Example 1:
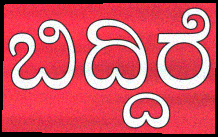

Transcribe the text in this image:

ಬಿದ್ದಿರೆ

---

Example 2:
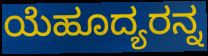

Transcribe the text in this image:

ಯೆಹೂದ್ಯರನ್ನ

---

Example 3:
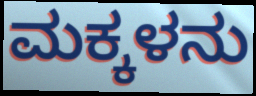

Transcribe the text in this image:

ಮಕ್ಕಳನು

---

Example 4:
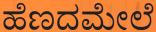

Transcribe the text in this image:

ಹೆಣದಮೇಲೆ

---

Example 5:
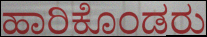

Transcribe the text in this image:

ಹಾರಿಕೊಂಡರು